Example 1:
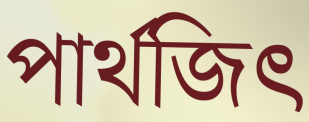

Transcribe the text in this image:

পার্থজিৎ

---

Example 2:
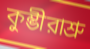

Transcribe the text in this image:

কুম্ভীরাশ্রু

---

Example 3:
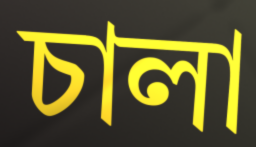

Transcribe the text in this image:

চালা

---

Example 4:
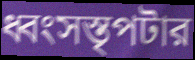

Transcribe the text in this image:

ধ্বংসস্তৃপটার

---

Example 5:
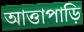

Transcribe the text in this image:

আত্তাপাড়ি